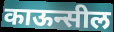
काऊन्सील